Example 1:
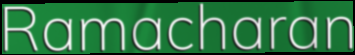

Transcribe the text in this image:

Ramacharan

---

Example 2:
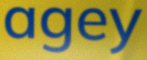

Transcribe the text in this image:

agey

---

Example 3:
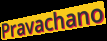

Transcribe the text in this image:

Pravachano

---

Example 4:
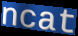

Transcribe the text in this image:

ncat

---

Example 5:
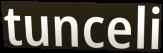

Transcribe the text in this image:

tunceli